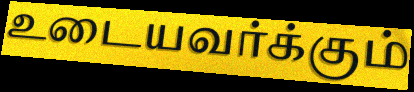
உடையவர்க்கும்